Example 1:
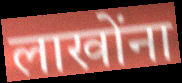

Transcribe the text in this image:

लाखोंना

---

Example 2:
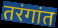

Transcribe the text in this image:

तरंगांत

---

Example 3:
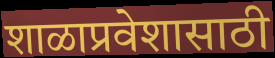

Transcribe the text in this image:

शाळाप्रवेशासाठी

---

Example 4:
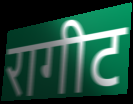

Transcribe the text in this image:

रागीट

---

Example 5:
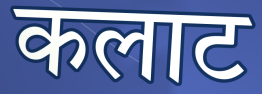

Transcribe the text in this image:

कलाट